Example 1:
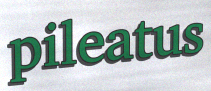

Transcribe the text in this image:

pileatus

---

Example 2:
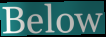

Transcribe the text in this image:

Below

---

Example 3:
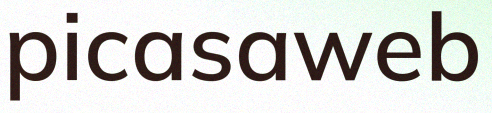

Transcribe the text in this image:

picasaweb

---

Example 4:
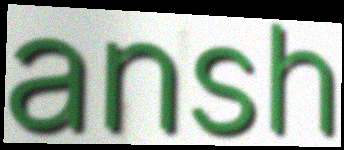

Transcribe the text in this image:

ansh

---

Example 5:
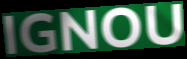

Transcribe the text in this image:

IGNOU